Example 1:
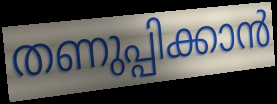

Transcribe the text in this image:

തണുപ്പിക്കാൻ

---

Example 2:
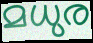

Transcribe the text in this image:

മധുര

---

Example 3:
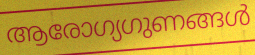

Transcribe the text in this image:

ആരോഗ്യഗുണങ്ങൾ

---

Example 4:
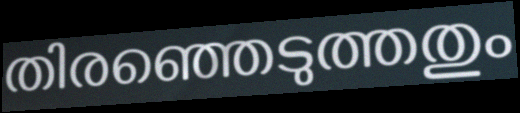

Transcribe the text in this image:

തിരഞ്ഞെടുത്തതും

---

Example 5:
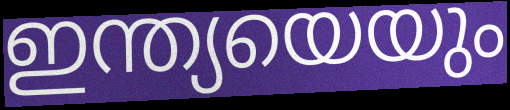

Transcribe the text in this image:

ഇന്ത്യയെയും